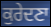
ਕੁਰੇਦਣਾ